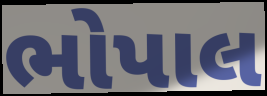
ભોપાલ